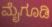
ಮೈಗೂಡಿ